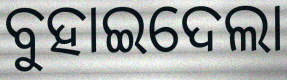
ବୁହାଇଦେଲା